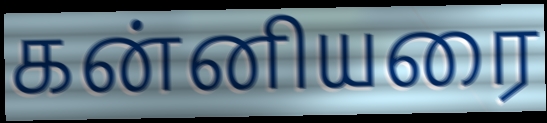
கன்னியரை